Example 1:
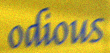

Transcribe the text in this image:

odious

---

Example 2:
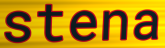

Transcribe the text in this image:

stena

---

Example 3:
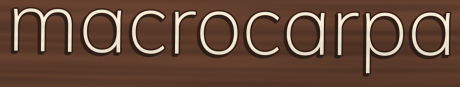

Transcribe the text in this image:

macrocarpa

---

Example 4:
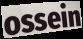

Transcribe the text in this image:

ossein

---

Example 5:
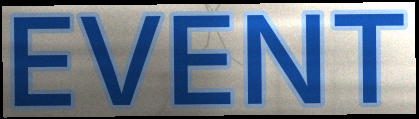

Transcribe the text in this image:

EVENT